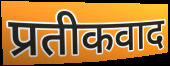
प्रतीकवाद